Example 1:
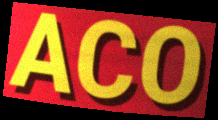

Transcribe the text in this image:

ACO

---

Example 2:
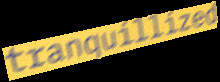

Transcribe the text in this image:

tranquillized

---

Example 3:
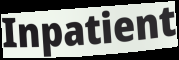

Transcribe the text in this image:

Inpatient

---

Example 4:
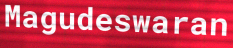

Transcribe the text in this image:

Magudeswaran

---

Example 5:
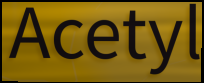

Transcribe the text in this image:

Acetyl